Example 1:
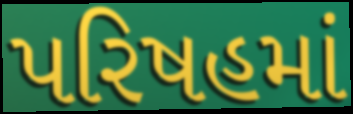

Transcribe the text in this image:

પરિષહમાં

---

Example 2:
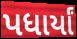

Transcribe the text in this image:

પધાર્યાં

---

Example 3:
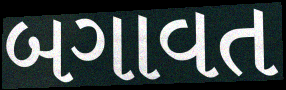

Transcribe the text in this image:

બગાવત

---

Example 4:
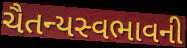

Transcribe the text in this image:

ચૈતન્યસ્વભાવની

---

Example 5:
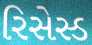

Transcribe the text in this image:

રિસેસ્ડ